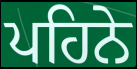
ਪਹਿਨੇ